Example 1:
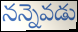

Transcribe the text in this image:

నన్నెవడు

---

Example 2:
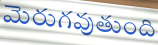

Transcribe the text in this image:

మెరుగవుతుంది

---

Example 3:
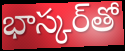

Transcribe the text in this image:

భాస్కర్‌తో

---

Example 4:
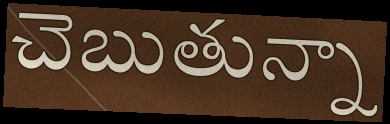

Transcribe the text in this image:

చెబుతున్నా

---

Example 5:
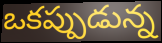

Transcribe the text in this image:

ఒకప్పుడున్న